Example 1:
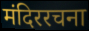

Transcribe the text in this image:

मंदिररचना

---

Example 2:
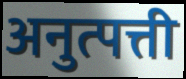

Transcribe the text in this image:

अनुत्पत्ती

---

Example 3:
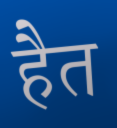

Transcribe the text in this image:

हैत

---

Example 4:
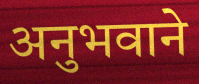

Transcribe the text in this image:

अनुभवाने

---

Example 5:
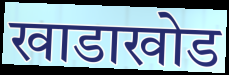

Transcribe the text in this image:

खाडाखोड